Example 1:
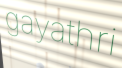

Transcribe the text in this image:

gayathri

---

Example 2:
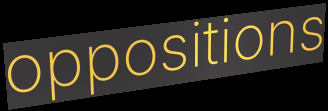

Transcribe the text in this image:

oppositions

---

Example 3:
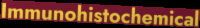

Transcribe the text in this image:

Immunohistochemical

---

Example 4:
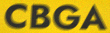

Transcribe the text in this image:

CBGA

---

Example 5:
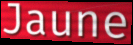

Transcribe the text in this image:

Jaune